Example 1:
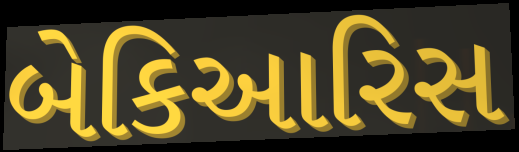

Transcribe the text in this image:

બેકિઆરિસ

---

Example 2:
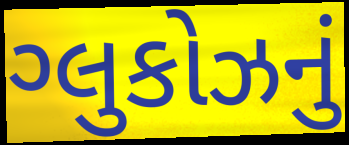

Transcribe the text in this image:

ગ્લુકોઝનું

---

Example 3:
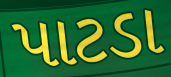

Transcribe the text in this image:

પાટડા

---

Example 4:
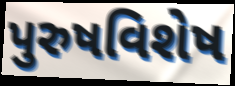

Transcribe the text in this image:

પુરુષવિશેષ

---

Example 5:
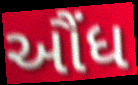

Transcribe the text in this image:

ઔંધ